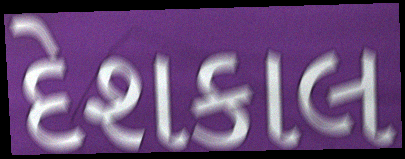
દેશકાલ